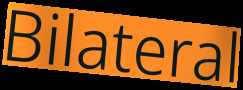
Bilateral